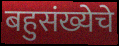
बहुसंख्येचे